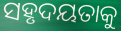
ସହୃଦୟତାକୁ